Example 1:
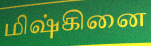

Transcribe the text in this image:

மிஷ்கினை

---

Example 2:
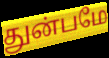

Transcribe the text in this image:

துன்பமே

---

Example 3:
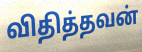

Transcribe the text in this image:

விதித்தவன்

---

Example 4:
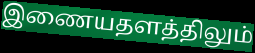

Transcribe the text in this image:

இணையதளத்திலும்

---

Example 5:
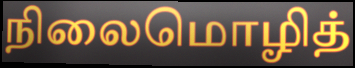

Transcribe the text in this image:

நிலைமொழித்